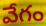
వేగం